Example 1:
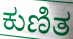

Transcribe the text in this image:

ಕುಣಿತ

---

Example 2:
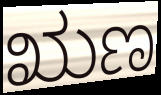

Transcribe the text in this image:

ಋಣ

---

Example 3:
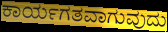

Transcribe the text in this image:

ಕಾರ್ಯಗತವಾಗುವುದು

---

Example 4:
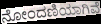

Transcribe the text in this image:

ನೋಂದಣಿಯಾಗಿವೆ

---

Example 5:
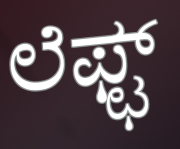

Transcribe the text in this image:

ಲೆಫ್ಟ್